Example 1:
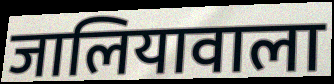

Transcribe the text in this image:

जालियावाला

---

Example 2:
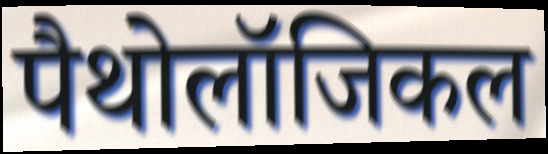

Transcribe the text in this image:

पैथोलॉजिकल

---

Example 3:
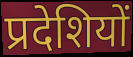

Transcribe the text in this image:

प्रदेशियों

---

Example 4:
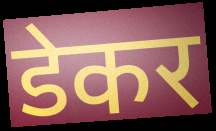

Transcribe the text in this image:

डेकर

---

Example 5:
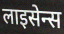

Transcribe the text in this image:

लाइसेन्स